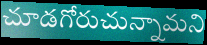
చూడగోరుచున్నామని